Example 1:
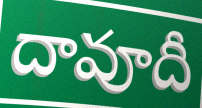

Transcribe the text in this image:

దావూదీ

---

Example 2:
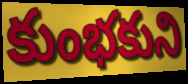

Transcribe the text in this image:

కుంభకుని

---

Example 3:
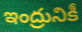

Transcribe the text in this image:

ఇంద్రునికీ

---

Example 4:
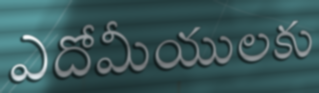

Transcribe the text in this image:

ఎదోమీయులకు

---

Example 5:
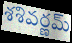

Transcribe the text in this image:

శశివర్ణమ్